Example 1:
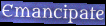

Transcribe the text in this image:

Emancipate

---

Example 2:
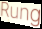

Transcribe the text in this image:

Rung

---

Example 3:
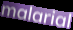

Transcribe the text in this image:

malarial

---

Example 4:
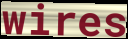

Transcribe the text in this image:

wires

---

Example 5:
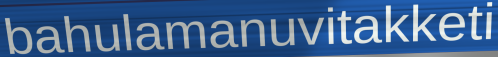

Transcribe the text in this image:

bahulamanuvitakketi